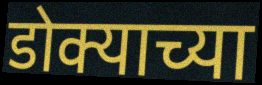
डोक्याच्या